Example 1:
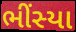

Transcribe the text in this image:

ભીંસ્યા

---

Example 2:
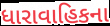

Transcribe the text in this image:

ધારાવાહિકના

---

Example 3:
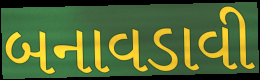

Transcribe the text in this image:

બનાવડાવી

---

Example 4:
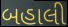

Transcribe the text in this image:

બહાલી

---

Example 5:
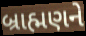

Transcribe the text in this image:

બ્રાહ્મણને